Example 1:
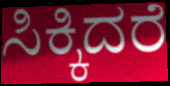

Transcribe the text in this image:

ಸಿಕ್ಕಿದರೆ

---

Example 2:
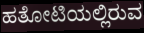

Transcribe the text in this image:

ಹತೋಟಿಯಲ್ಲಿರುವ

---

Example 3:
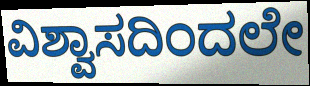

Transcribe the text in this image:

ವಿಶ್ವಾಸದಿಂದಲೇ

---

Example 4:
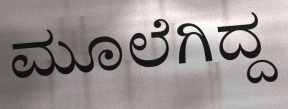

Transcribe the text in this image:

ಮೂಲೆಗಿದ್ದ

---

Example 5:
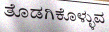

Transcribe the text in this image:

ತೊಡಗಿಕೊಳ್ಳುವ